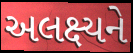
અલક્ષ્યને